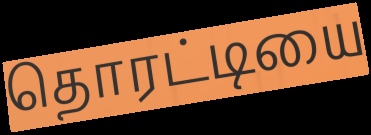
தொரட்டியை